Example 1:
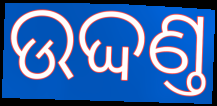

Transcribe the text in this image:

ଉଦ୍ଦଣ୍ତ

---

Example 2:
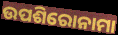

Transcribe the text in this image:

ଉପଶିରୋନାମା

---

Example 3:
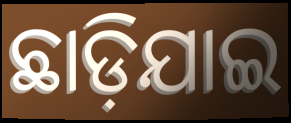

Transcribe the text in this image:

ଛାଡ଼ିଯାଇ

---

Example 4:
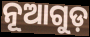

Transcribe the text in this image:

ନୂଆଗୁଡ଼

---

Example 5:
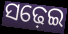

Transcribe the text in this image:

ସଢ଼େଇ